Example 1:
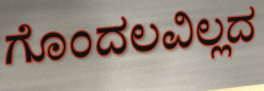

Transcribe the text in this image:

ಗೊಂದಲವಿಲ್ಲದ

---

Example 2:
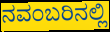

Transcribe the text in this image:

ನವಂಬರಿನಲ್ಲಿ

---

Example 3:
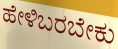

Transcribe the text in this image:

ಹೇಳಿಬರಬೇಕು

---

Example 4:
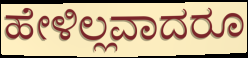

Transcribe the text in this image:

ಹೇಳಿಲ್ಲವಾದರೂ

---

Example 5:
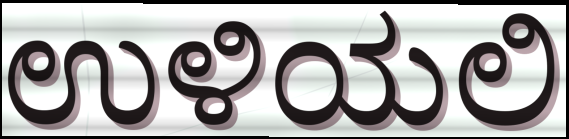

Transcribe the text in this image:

ಉಳಿಯಲಿ